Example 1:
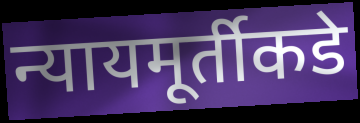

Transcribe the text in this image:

न्यायमूर्तीकडे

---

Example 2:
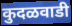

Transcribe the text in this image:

कुदळवाडी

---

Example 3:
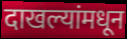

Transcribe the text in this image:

दाखल्यांमधून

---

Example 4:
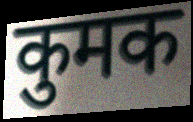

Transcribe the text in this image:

कुमक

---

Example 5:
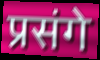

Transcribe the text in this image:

प्रसंगे